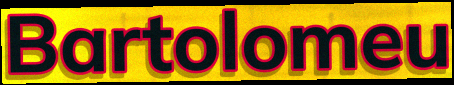
Bartolomeu